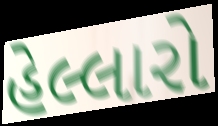
હેલ્લારો